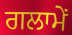
ਗਲਾਮੇਂ